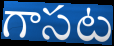
గాసట